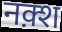
नक़्श